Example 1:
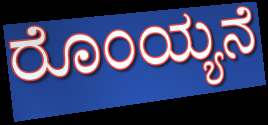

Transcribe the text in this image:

ರೊಂಯ್ಯನೆ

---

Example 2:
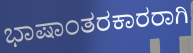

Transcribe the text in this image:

ಭಾಷಾಂತರಕಾರರಾಗಿ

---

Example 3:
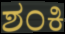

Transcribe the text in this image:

ಶಂಕಿ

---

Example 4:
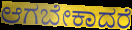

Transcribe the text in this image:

ಆಗಬೇಕಾದರೆ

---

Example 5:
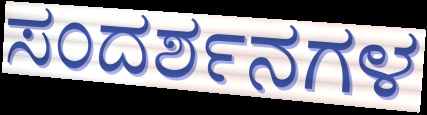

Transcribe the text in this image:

ಸಂದರ್ಶನಗಳ